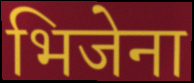
भिजेना